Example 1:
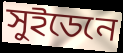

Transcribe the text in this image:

সুইডেনে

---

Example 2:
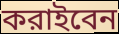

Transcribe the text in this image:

করাইবেন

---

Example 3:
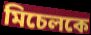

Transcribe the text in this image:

মিচেলকে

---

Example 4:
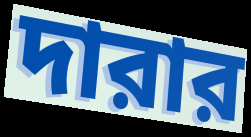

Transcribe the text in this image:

দারার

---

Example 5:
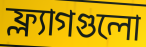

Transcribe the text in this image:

ফ্ল্যাগগুলো